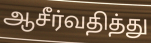
ஆசீர்வதித்து